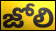
జోలి